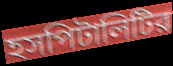
হসপিটালিটির